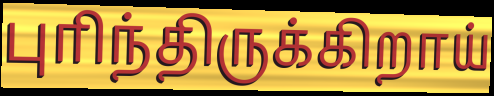
புரிந்திருக்கிறாய்